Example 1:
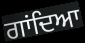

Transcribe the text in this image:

ਗਾਂਦਿਆ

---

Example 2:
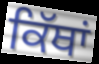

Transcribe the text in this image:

ਕਿੱਥਾਂ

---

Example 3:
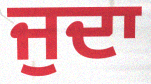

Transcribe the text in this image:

ਜੁਦਾ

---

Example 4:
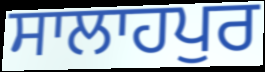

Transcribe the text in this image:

ਸਾਲਾਹਪੁਰ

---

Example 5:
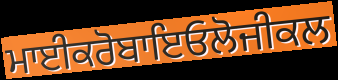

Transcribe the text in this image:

ਮਾਈਕਰੋਬਾਇਓਲੋਜੀਕਲ